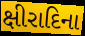
ક્ષીરાદિના